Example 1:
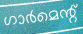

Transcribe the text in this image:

ഗാർമെന്റ്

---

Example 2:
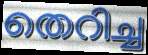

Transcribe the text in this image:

തെറിച്ച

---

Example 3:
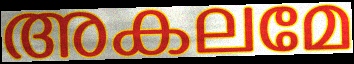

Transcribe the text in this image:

അകലമേ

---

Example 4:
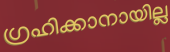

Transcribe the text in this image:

ഗ്രഹിക്കാനായില്ല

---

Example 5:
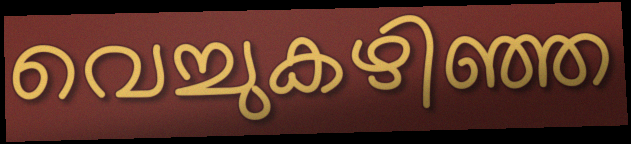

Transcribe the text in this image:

വെച്ചുകഴിഞ്ഞ